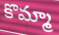
కొమ్మా